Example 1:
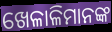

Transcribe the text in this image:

ଖେଳାଳିମାନଙ୍କ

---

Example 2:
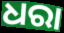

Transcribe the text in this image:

ଧରା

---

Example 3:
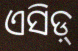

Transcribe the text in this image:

ଏସିଡ଼୍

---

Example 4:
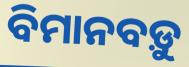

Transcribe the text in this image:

ବିମାନବଡ଼ୁ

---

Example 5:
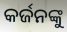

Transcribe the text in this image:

କର୍ଜନଙ୍କୁ